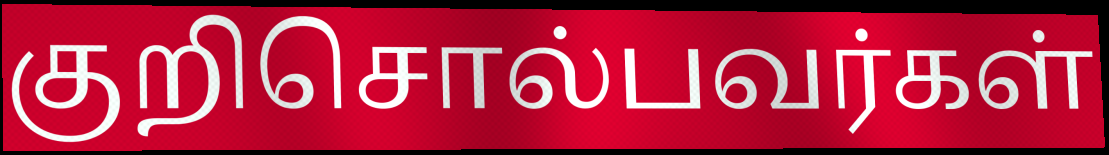
குறிசொல்பவர்கள்